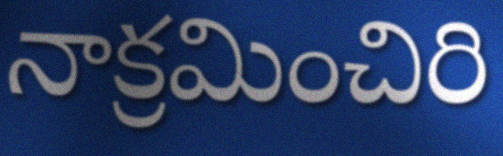
నాక్రమించిరి